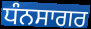
ਧੰਨਸਾਗਰ